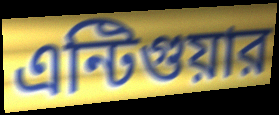
এন্টিগুয়ার